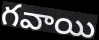
గవాయి